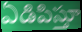
ఏడిపిస్తూ